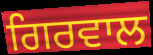
ਗਿਰਵਾਲ